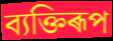
ব্যক্তিৰূপ